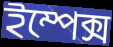
ইম্পেক্স